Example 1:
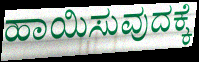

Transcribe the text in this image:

ಹಾಯಿಸುವುದಕ್ಕೆ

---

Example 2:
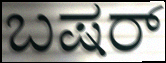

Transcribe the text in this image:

ಬಷರ್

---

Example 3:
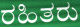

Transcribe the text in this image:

ರಹಿತರು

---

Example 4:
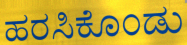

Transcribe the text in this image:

ಹರಸಿಕೊಂಡು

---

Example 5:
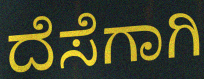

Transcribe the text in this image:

ದೆಸೆಗಾಗಿ